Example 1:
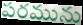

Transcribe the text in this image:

పరమును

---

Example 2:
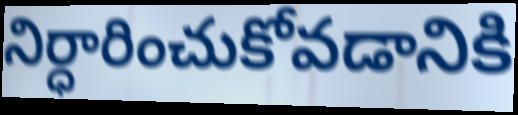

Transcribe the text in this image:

నిర్ధారించుకోవడానికి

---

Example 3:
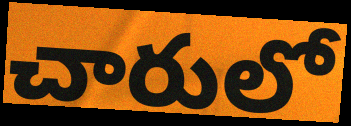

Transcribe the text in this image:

చారులో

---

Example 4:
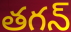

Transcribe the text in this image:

తగన్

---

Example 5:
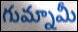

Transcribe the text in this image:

గుమ్నామీ